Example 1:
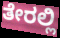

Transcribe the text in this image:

ತೇರಲ್ಲಿ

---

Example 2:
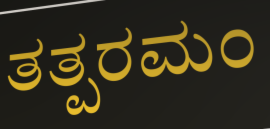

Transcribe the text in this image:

ತತ್ಪರಮಂ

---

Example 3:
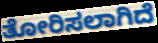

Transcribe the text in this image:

ತೋರಿಸಲಾಗಿದೆ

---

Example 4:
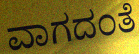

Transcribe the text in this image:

ವಾಗದಂತೆ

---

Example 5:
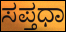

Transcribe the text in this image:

ಸಪ್ತಧಾ